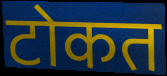
टोकत